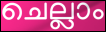
ചെല്ലാം